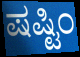
ಷಷ್ಟಿಂ